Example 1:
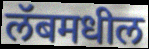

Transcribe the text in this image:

लॅबमधील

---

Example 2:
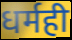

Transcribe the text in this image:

धर्मही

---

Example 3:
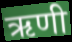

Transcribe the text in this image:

ऋणी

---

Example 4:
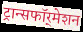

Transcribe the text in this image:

ट्रान्सफॉर्मेशन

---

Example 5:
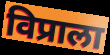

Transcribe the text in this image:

विप्राला